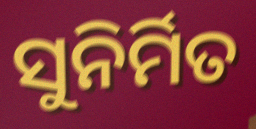
ସୁନିର୍ମିତ